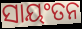
ସାୟଂତନ